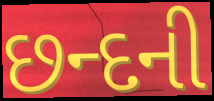
છન્દની